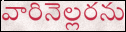
వారినెల్లరను